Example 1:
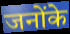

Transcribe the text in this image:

जनोंके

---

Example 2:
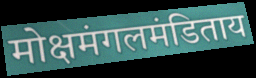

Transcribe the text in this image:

मोक्षमंगलमंडिताय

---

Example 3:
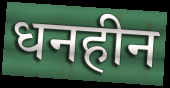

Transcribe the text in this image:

धनहीन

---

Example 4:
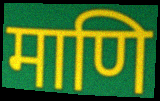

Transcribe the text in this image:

माणि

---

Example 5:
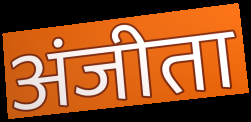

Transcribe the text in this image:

अंजीता